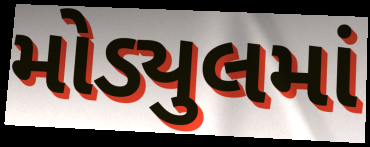
મોડ્યુલમાં